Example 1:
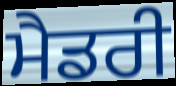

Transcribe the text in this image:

ਮੈਡਰੀ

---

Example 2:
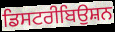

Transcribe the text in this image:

ਡਿਸਟਰੀਬਿਉਸ਼ਨ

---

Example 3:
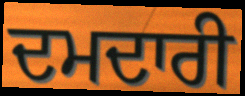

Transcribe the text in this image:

ਦਮਦਾਰੀ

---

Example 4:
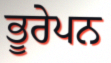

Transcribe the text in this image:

ਭੂਰੇਪਨ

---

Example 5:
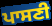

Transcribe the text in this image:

ਪਾਸਣੀ